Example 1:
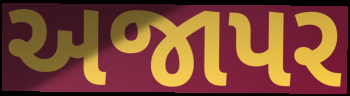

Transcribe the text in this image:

અજાપર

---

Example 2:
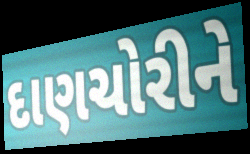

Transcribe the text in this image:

દાણચોરીને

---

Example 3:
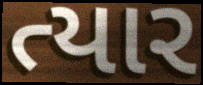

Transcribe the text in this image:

ત્યાર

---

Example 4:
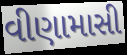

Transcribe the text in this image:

વીણામાસી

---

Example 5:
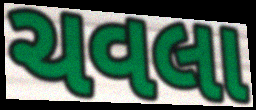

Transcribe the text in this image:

ચવલા